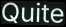
Quite